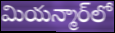
మియన్మార్‌లో